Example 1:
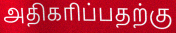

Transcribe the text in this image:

அதிகரிப்பதற்கு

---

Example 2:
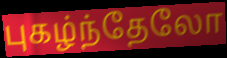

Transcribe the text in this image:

புகழ்ந்தேலோ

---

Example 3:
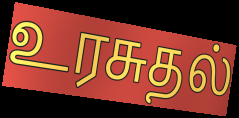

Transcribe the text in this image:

உரசுதல்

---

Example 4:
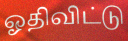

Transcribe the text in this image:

ஓதிவிட்டு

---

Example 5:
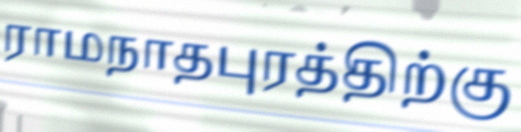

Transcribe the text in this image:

ராமநாதபுரத்திற்கு